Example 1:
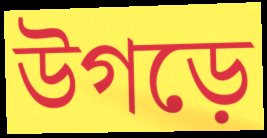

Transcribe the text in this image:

উগড়ে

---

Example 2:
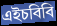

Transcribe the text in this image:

এইচবিবি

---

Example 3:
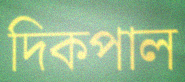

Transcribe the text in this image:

দিকপাল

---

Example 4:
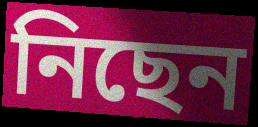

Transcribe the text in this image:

নিছেন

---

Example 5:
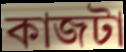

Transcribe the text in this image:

কাজটা